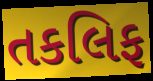
તકલિફ